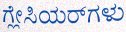
ಗ್ಲೇಸಿಯರ್‌ಗಳು